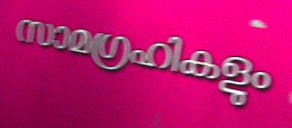
സാമഗ്രഹികളും